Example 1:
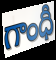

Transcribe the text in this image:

గాంధీ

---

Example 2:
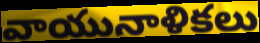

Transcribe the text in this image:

వాయునాళికలు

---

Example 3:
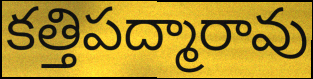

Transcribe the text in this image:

కత్తిపద్మారావు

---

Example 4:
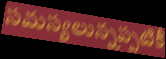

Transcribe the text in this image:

సమస్యలున్నప్పటికీ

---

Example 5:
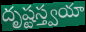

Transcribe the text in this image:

దృష్టస్త్వయా